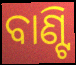
ବାଣ୍ଟି